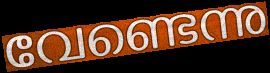
വേണ്ടെന്നു